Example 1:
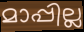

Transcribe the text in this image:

മാപ്പില്ല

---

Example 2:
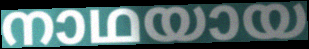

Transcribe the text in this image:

നാഥയായ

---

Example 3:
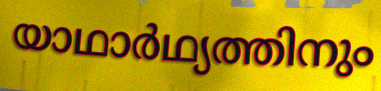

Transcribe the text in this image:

യാഥാർഥ്യത്തിനും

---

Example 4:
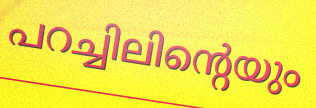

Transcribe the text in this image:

പറച്ചിലിന്റെയും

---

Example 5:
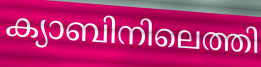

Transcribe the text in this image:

ക്യാബിനിലെത്തി